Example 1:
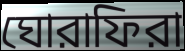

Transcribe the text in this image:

ঘোরাফিরা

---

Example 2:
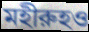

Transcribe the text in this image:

মহীরুহও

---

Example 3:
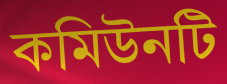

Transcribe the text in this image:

কমিউনটি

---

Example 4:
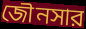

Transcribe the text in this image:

জৌনসার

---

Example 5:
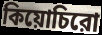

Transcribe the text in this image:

কিয়োচিরো